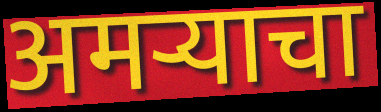
अमऱ्याचा